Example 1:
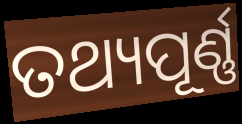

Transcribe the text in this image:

ତଥ୍ୟପୂର୍ଣ୍ଣ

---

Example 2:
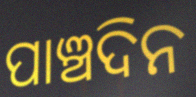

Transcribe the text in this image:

ପାଞ୍ଚଦିନ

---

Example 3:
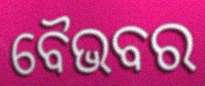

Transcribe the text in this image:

ବୈଭବର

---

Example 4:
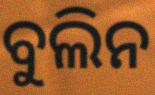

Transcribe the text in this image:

ବୁଲିନ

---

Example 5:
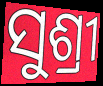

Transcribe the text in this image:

ସୁଶ୍ରୀ